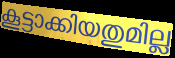
കൂട്ടാക്കിയതുമില്ല